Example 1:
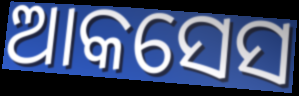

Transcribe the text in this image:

ଆକସେସ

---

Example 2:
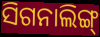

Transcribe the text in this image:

ସିଗନାଲିଙ୍ଗ୍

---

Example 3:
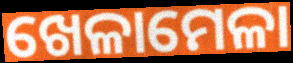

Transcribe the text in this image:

ଖେଳାମେଳା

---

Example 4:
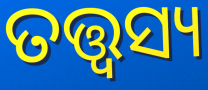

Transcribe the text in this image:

ତତ୍ତ୍ୱସ୍ୟ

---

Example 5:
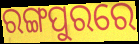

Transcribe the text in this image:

ରଙ୍ଗପୁରରେ